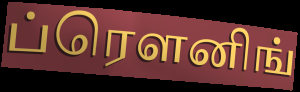
ப்ரௌனிங்